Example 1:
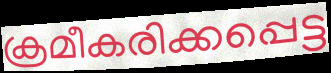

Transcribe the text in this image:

ക്രമീകരിക്കപ്പെട്ട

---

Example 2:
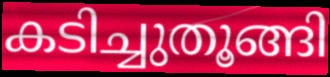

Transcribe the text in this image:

കടിച്ചുതൂങ്ങി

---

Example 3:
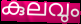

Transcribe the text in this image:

കുലവും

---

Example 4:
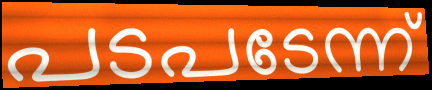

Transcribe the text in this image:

പടപടേന്ന്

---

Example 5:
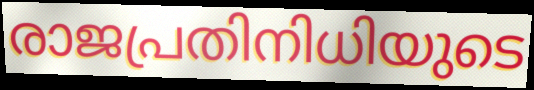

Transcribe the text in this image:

രാജപ്രതിനിധിയുടെ